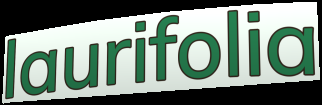
laurifolia